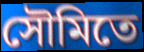
সৌমিতে